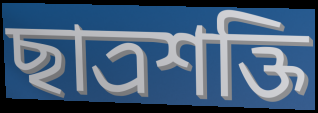
ছাত্ৰশক্তি